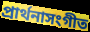
প্রার্থনাসংগীত